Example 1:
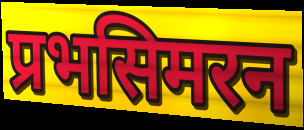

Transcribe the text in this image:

प्रभसिमरन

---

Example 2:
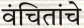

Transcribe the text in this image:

वंचितांचे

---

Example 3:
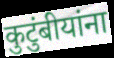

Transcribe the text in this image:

कुटुंबीयांना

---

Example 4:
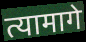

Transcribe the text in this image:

त्यामागे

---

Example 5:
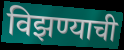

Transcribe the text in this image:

विझण्याची